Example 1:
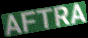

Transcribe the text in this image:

AFTRA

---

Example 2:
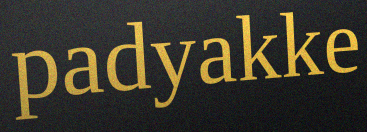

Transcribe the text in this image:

padyakke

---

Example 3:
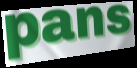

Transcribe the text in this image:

pans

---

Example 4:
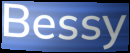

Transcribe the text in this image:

Bessy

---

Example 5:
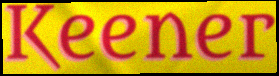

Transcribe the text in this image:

Keener